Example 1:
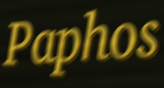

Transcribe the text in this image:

Paphos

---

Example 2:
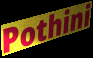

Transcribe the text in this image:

Pothini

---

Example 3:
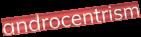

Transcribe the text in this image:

androcentrism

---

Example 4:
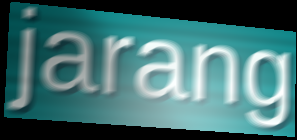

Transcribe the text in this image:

jarang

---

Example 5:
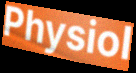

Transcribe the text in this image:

Physiol